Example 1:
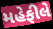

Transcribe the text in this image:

મહેફીલે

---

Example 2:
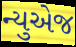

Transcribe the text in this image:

ન્યુએજ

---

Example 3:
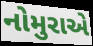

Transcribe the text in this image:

નોમુરાએ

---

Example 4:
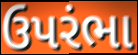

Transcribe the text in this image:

ઉપરંભા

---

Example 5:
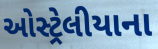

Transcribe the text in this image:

ઓસ્ટ્રેલીયાના